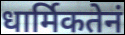
धार्मिकतेनं